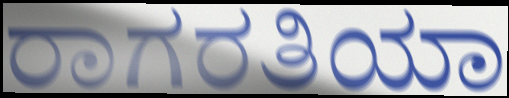
ರಾಗರತಿಯಾ